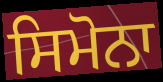
ਸਿਮੋਨਾ